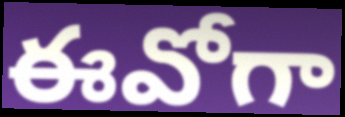
ఈవోగా